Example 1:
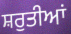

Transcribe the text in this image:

ਸ਼ਰੁਤੀਆਂ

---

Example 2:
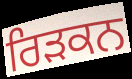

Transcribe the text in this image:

ਰਿੜਕਨ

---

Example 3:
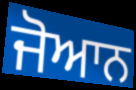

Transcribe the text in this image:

ਜੋਆਨ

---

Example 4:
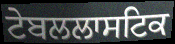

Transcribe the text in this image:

ਟੇਬਲਲਾਸਟਿਕ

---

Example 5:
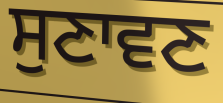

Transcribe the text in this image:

ਸੁਣਾਵਣ